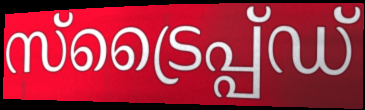
സ്ട്രൈപ്പ്ഡ്